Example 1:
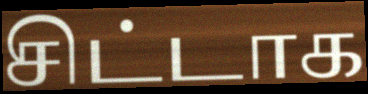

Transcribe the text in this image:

சிட்டாக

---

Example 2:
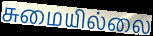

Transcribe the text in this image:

சுமையில்லை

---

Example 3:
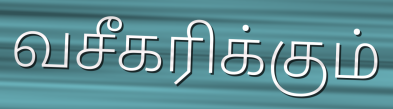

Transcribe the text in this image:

வசீகரிக்கும்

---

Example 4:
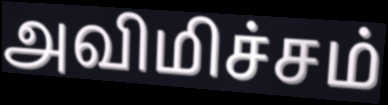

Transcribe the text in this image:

அவிமிச்சம்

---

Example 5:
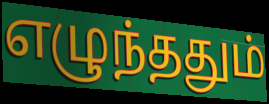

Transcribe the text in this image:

எழுந்ததும்